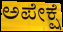
ಅಪೇಕ್ಷೆ